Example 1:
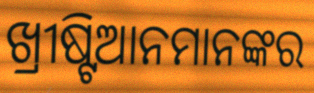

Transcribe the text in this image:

ଖ୍ରୀଷ୍ଟିଆନମାନଙ୍କର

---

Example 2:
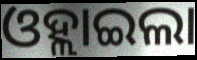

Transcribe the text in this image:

ଓହ୍ଲାଇଲା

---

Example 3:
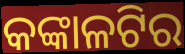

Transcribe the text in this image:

କଙ୍କାଳଟିର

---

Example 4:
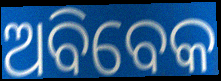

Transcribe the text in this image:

ଅବିବେକ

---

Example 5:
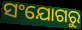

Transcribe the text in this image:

ସଂଯୋଗରୁ